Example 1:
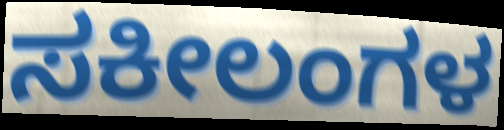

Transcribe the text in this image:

ಸಕೀಲಂಗಳ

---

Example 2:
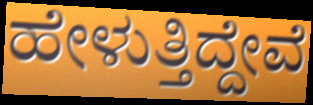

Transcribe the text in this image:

ಹೇಳುತ್ತಿದ್ದೇವೆ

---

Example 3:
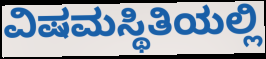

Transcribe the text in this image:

ವಿಷಮಸ್ಥಿತಿಯಲ್ಲಿ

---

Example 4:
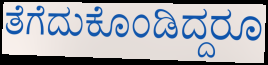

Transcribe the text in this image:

ತೆಗೆದುಕೊಂಡಿದ್ದರೂ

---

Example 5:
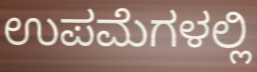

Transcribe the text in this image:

ಉಪಮೆಗಳಲ್ಲಿ